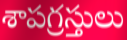
శాపగ్రస్తులు